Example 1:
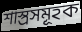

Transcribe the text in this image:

শাস্ত্ৰসমূহক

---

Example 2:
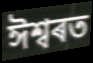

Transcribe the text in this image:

ঈশ্বৰত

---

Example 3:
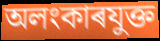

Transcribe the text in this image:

অলংকাৰযুক্ত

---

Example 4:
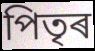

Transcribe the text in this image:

পিতৃৰ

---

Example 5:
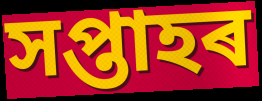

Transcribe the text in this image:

সপ্তাহৰ